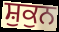
ਸ਼ੁਕੁਨ